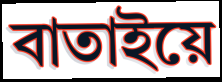
বাতাইয়ে